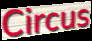
Circus